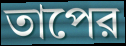
তাপের